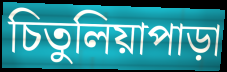
চিতুলিয়াপাড়া